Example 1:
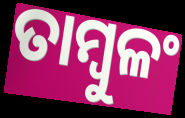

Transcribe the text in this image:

ତାମ୍ବୁଳଂ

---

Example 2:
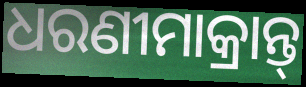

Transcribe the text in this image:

ଧରଣୀମାକ୍ରାନ୍ତ୍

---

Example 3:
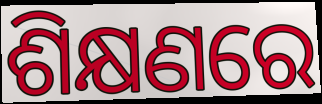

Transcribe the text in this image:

ଶିକ୍ଷଣରେ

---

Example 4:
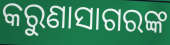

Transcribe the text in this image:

କରୁଣାସାଗରଙ୍କ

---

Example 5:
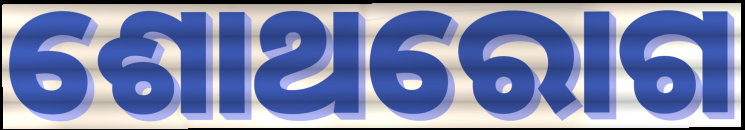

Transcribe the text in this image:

ଶୋଥରୋଗ